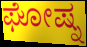
ಘೋಷ್ನ